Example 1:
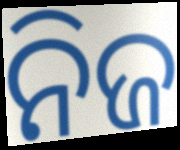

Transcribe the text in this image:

ନିଜ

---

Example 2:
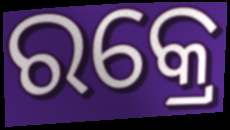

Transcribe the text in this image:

ରକ୍ରେ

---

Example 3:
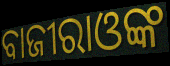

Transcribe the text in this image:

ବାଜୀରାଓଙ୍କ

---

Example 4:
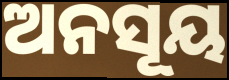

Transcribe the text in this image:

ଅନସୂୟ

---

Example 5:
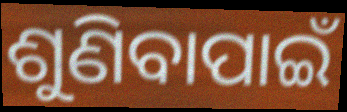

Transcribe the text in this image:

ଶୁଣିବାପାଇଁ